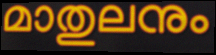
മാതുലനും